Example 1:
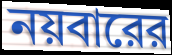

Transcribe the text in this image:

নয়বারের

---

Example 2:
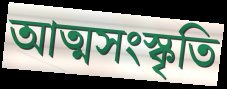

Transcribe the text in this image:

আত্মসংস্কৃতি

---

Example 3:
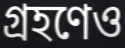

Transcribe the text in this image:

গ্রহণেও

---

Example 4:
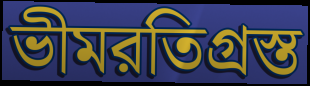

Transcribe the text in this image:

ভীমরতিগ্রস্ত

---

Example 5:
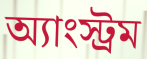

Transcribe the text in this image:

অ্যাংস্ট্রম